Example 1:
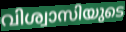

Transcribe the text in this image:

വിശ്വാസിയുടെ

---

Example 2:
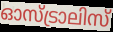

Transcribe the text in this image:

ഓസ്ട്രാലിസ്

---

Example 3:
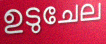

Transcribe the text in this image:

ഉടുചേല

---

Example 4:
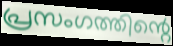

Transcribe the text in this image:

പ്രസംഗത്തിന്റെ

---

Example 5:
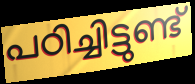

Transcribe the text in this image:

പഠിച്ചിട്ടുണ്ട്